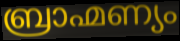
ബ്രാഹ്മണ്യം